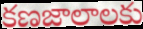
కణజాలాలకు